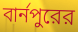
বার্নপুরের